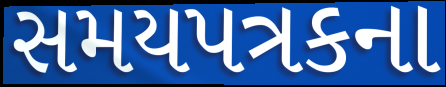
સમયપત્રકના